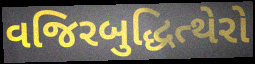
વજિરબુદ્ધિત્થેરો